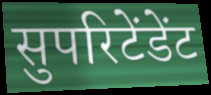
सुपरिटेंडेंट